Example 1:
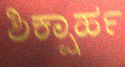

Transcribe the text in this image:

ಶಿಕ್ಷಾರ್ಹ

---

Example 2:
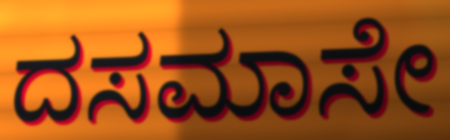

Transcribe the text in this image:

ದಸಮಾಸೇ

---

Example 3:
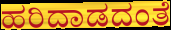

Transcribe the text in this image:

ಹರಿದಾಡದಂತೆ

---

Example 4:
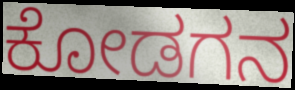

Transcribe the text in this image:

ಕೋಡಗನ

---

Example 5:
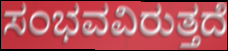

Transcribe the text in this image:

ಸಂಭವವಿರುತ್ತದೆ